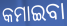
କମାଇବା